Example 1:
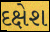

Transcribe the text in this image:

દક્ષેશ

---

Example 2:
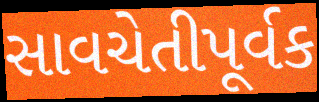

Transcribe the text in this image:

સાવચેતીપૂર્વક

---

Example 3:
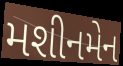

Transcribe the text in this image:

મશીનમેન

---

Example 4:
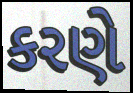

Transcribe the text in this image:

કરણે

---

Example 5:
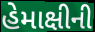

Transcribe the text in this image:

હેમાક્ષીની